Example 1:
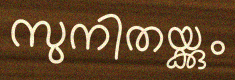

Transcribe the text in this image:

സുനിതയ്ക്കും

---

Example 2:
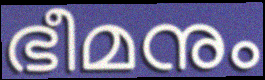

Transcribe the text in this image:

ഭീമനും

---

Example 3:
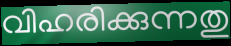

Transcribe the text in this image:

വിഹരിക്കുന്നതു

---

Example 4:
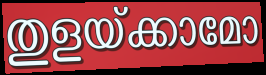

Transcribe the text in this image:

തുളയ്‌ക്കാമോ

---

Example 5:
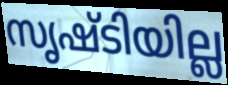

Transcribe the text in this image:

സൃഷ്ടിയില്ല